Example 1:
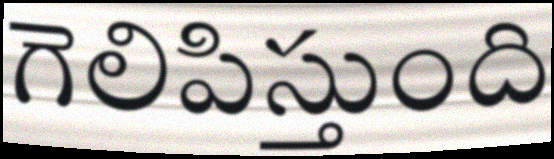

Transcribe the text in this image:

గెలిపిస్తుంది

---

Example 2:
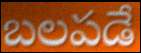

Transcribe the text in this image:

బలపడే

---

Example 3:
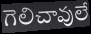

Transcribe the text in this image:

గెలిచావులే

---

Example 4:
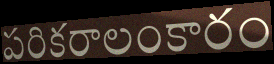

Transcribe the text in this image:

పరికరాలంకారం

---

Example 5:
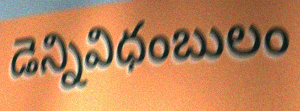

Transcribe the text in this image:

డెన్నివిధంబులం